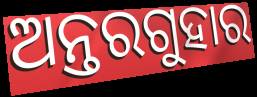
ଅନ୍ତରଗୁହାର